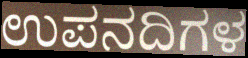
ಉಪನದಿಗಳ